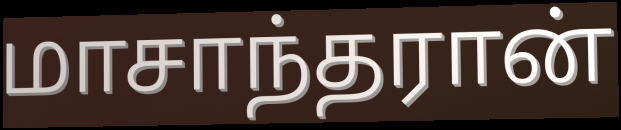
மாசாந்தரான்